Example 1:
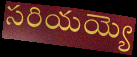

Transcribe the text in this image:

సరియయ్యె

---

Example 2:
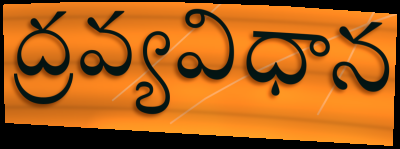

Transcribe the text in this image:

ద్రవ్యవిధాన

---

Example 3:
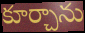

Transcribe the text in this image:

కూర్చాను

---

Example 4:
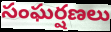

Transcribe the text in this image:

సంఘర్షణలు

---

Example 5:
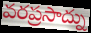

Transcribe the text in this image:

వరప్రసాద్ను